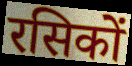
रसिकों